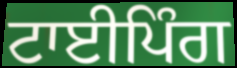
ਟਾਈਪਿੰਗ